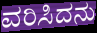
ವರಿಸಿದನು